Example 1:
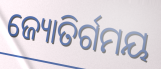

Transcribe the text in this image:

ଜ୍ୟୋତିର୍ଗମୟ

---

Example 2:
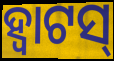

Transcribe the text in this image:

ହ୍ୱାଟସ୍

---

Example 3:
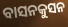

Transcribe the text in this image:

ବାସନକୁସନ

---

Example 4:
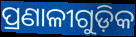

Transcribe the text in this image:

ପ୍ରଣାଳୀଗୁଡ଼ିକ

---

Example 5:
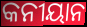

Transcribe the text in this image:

କନୀୟାନ